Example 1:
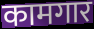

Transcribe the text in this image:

कामगार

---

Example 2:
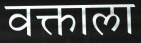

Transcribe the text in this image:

वक्ताला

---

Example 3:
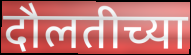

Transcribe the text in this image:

दौलतीच्या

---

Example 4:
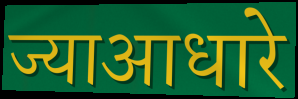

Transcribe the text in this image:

ज्याआधारे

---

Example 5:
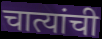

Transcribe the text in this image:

चात्यांची